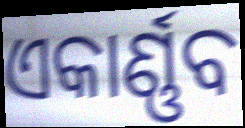
ଏକାର୍ଣ୍ଣବ